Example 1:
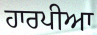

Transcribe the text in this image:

ਹਾਰਪੀਆ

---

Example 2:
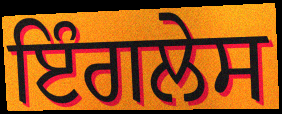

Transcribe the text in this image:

ਇੰਗਲੇਸ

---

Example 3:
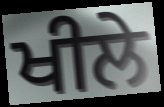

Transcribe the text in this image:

ਖੀਲੇ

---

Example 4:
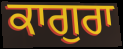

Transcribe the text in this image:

ਕਾਗੁਰਾ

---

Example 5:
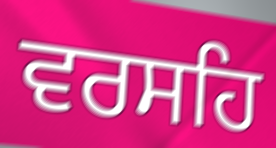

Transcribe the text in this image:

ਵਰਸਹਿ